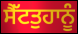
ਸੈੱਟਤੁਹਾਨੂੰ